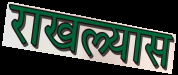
राखल्यास